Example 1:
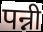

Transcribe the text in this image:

पन्नी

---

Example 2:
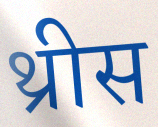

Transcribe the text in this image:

थ्रीस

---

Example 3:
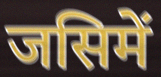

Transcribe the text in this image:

जसिमें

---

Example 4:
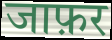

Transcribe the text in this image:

जाफ़र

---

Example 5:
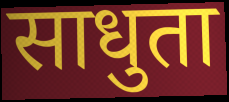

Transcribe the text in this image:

साधुता